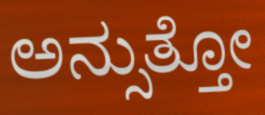
ಅನ್ಸುತ್ತೋ